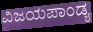
ವಿಜಯಪಾಂಡ್ಯ